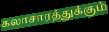
கலாசாரத்துக்கும்